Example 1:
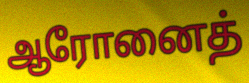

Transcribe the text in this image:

ஆரோனைத்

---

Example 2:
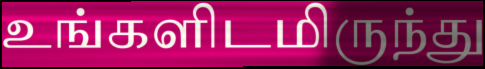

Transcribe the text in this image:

உங்களிடமிருந்து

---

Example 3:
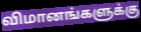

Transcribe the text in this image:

விமானங்களுக்கு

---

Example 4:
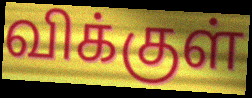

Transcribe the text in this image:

விக்குள்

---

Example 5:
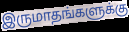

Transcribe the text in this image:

இருமாதங்களுக்கு